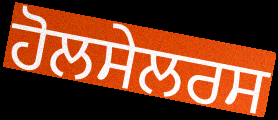
ਹੋਲਸੇਲਰਸ